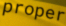
proper